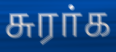
சுரர்க